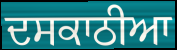
ਦਸਕਾਠੀਆ